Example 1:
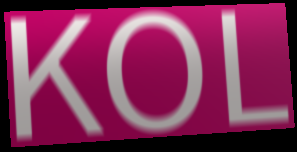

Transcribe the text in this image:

KOL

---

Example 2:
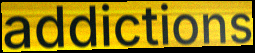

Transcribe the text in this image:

addictions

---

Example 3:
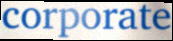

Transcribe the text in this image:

corporate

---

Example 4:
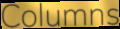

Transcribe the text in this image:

Columns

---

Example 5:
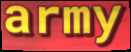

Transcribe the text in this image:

army